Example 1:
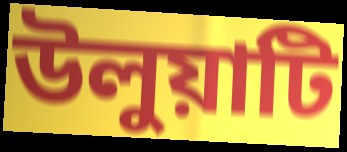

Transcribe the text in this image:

উলুয়াটি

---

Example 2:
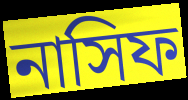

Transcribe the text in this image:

নাসিফ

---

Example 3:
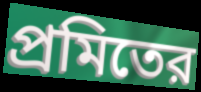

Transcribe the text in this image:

প্রমিতের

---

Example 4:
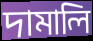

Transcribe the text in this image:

দামালি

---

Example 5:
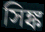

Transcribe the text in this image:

সিঙ্ক